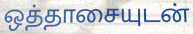
ஒத்தாசையுடன்